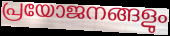
പ്രയോജനങ്ങളും